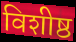
विशीष्ठ